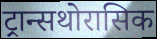
ट्रान्सथोरासिक